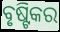
ବୃଷ୍ଟିକର